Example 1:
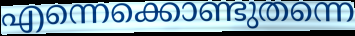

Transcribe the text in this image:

എന്നെക്കൊണ്ടുതന്നെ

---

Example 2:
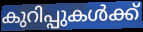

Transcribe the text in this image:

കുറിപ്പുകൾക്ക്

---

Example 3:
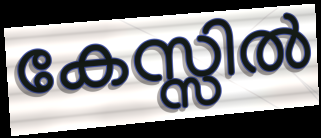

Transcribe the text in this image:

കേസ്സിൽ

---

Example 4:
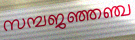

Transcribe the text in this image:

സമ്പജഞ്ഞഞ്ച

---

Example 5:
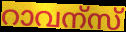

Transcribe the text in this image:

റാവന്സ്